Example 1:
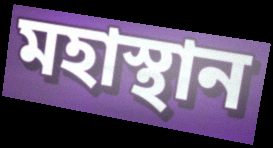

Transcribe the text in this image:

মহাস্থান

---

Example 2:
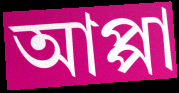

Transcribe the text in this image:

আপ্পা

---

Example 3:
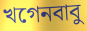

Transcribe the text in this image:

খগেনবাবু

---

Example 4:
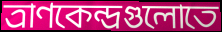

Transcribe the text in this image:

ত্রাণকেন্দ্রগুলোতে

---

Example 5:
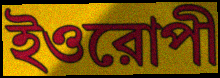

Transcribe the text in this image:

ইওরোপী